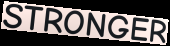
STRONGER